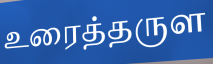
உரைத்தருள